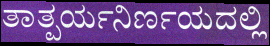
ತಾತ್ಪರ್ಯನಿರ್ಣಯದಲ್ಲಿ